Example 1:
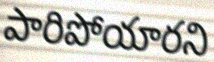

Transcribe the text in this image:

పారిపోయారని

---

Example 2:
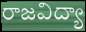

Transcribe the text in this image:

రాజవిద్యా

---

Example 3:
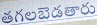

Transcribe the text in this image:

తగలబెడతారు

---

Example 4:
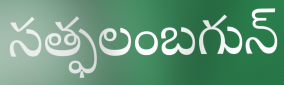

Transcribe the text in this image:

సత్ఫలంబగున్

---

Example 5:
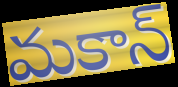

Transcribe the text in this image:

మకాన్